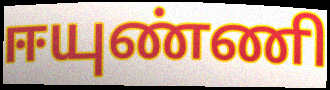
ஈயுண்ணி